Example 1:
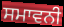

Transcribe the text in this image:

ਸਮਾਵਨੀ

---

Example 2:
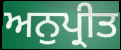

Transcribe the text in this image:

ਅਨੁਪ੍ਰੀਤ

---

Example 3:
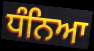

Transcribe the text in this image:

ਧੰਨਿਆ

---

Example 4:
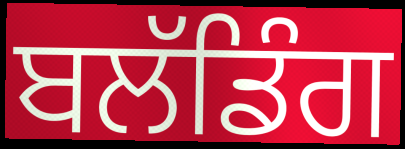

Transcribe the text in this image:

ਬਲੱਡਿੰਗ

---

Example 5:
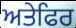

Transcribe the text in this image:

ਅਤੇਫਿਰ